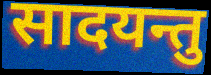
सादयन्तु